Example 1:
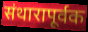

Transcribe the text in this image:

संथारापूर्वक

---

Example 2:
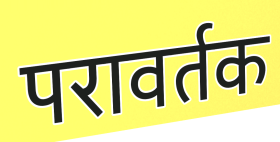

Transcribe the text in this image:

परावर्तक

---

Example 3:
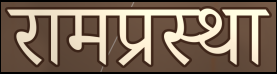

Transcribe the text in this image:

रामप्रस्था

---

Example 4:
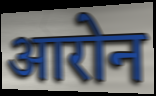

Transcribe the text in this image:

आरोन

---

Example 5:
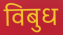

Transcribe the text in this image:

विबुध